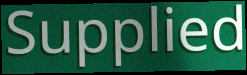
Supplied